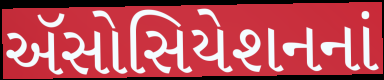
ઍસોસિયેશનનાં